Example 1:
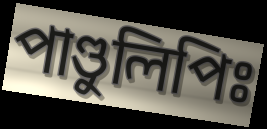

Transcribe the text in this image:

পাণ্ডুলিপিঃ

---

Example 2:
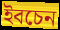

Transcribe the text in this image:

ইবচেন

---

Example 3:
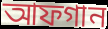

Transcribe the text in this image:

আফগান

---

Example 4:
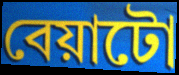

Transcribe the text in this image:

বেয়াটো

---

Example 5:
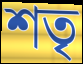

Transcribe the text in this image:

শতৃ